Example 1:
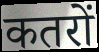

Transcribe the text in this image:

कतरों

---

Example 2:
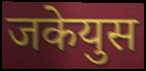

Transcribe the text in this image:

जकेयुस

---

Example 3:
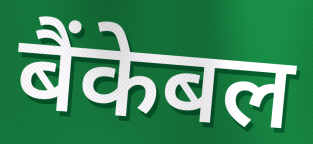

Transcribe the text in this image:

बैंकेबल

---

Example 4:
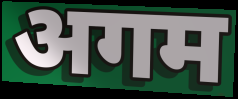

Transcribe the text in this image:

अगम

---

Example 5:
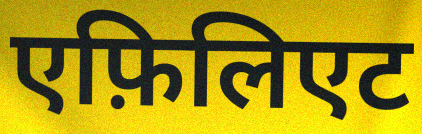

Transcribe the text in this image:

एफ़िलिएट